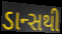
ડાન્સથી